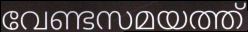
വേണ്ടസമയത്ത്